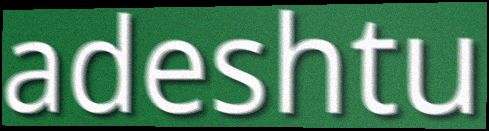
adeshtu